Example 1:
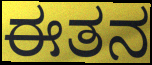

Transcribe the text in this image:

ಈತನ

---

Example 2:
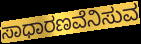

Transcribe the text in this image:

ಸಾಧಾರಣವೆನಿಸುವ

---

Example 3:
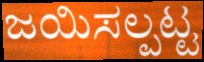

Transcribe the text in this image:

ಜಯಿಸಲ್ಪಟ್ಟ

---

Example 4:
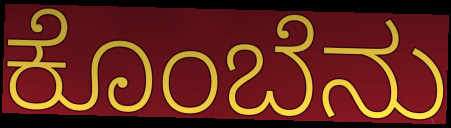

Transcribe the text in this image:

ಕೊಂಬೆನು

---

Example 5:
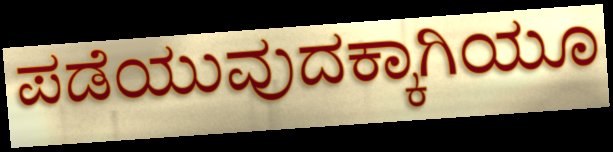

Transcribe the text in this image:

ಪಡೆಯುವುದಕ್ಕಾಗಿಯೂ